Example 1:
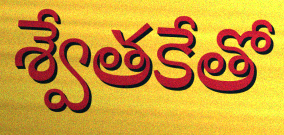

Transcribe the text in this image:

శ్వేతకేతో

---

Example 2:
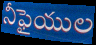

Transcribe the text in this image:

నీఫైయుల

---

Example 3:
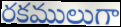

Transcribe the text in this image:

రకములుగా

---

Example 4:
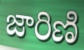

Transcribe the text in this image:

జారిణి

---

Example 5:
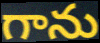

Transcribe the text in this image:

గాను